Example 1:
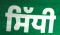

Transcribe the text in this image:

ਸਿੱਧੀ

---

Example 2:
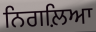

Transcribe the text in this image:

ਨਿਗਲ਼ਿਆ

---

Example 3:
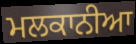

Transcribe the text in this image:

ਮਲਕਾਨੀਆ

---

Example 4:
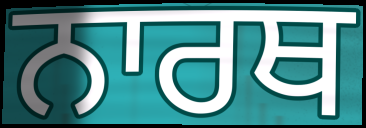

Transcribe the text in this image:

ਨਾਰਥ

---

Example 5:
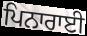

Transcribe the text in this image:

ਪਿਨਾਰਾਈ